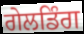
ਗੇਲਡਿੰਗ